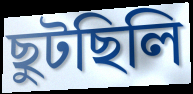
ছুটছিলি